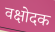
वक्षोदक